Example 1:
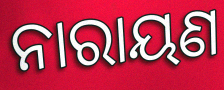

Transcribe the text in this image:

ନାରାୟଣ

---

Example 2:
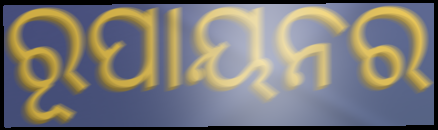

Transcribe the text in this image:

ରୂପାୟନର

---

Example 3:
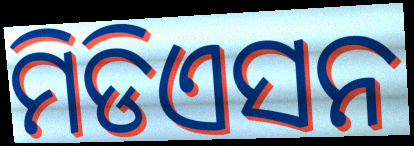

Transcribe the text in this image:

ମିଡିଏସନ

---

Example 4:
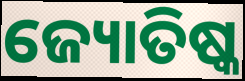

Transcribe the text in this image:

ଜ୍ୟୋତିଷ୍କ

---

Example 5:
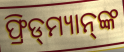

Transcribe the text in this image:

ଫ୍ରିଡ୍‌ମ୍ୟାନ୍‌ଙ୍କ